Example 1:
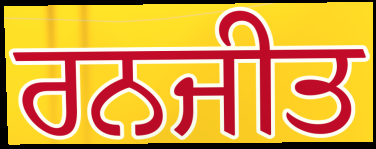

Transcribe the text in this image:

ਰਨਜੀਤ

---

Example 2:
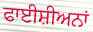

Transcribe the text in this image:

ਫਾਈਸ਼ੀਅਨਾਂ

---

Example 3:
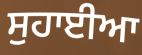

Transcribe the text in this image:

ਸੁਹਾਈਆ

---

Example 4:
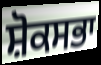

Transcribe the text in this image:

ਸ਼ੋਕਸਭਾ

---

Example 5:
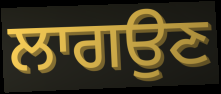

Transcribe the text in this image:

ਲਾਗਉਣ